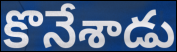
కొనేశాడు